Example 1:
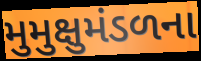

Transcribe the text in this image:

મુમુક્ષુમંડળના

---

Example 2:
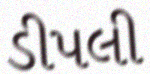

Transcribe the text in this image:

ડીપલી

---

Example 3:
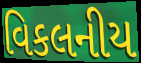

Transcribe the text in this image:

વિકલનીય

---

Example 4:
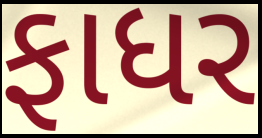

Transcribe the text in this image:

ફાધર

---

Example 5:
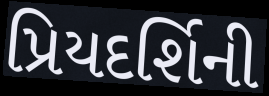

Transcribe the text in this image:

પ્રિયદર્શિની